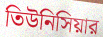
তিউনিসিয়ার